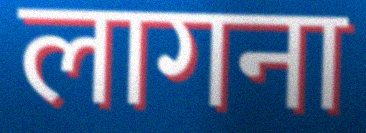
लागना